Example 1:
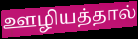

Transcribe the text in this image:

ஊழியத்தால்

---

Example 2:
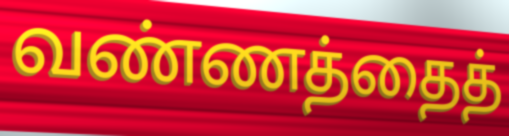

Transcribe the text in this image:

வண்ணத்தைத்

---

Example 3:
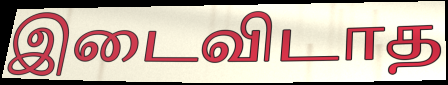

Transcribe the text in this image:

இடைவிடாத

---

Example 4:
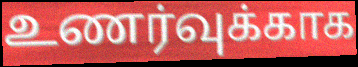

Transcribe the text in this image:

உணர்வுக்காக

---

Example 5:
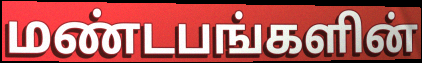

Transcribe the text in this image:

மண்டபங்களின்